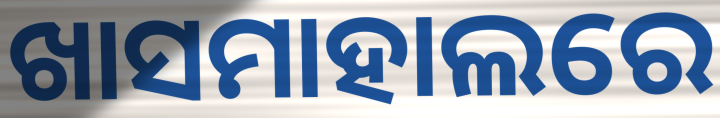
ଖାସମାହାଲରେ